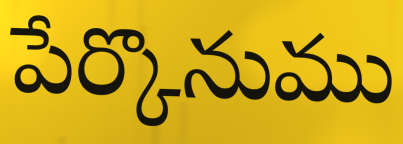
పేర్కొనుము